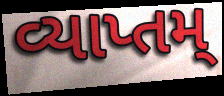
વ્યાપ્તમ્